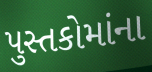
પુસ્તકોમાંના